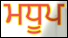
ਮਧੂਪ